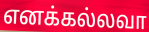
எனக்கல்லவா